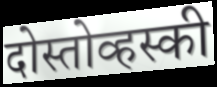
दोस्तोव्हस्की